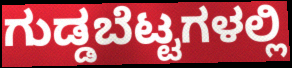
ಗುಡ್ಡಬೆಟ್ಟಗಳಲ್ಲಿ